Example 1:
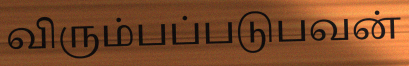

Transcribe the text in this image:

விரும்பப்படுபவன்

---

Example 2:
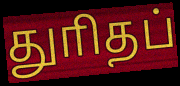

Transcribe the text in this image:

துரிதப்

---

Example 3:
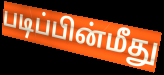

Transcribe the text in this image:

படிப்பின்மீது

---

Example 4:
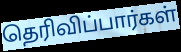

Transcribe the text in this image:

தெரிவிப்பார்கள்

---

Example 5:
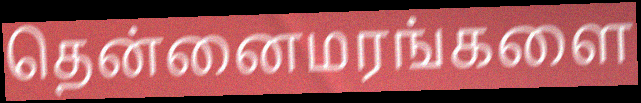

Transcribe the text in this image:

தென்னைமரங்களை